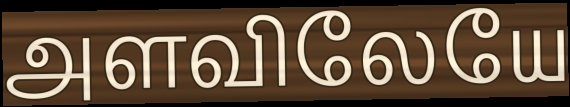
அளவிலேயே